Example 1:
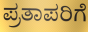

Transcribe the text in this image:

ಪ್ರತಾಪರಿಗೆ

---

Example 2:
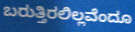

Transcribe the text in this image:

ಬರುತ್ತಿರಲಿಲ್ಲವೆಂದೂ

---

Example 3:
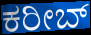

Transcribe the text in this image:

ಕರೀಬ್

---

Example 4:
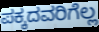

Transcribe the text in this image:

ಪಕ್ಕದವರಿಗೆಲ್ಲ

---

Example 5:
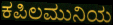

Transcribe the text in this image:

ಕಪಿಲಮುನಿಯ